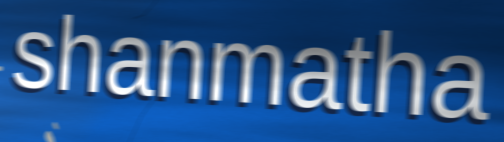
shanmatha